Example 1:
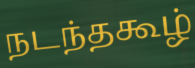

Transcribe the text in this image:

நடந்தகூழ்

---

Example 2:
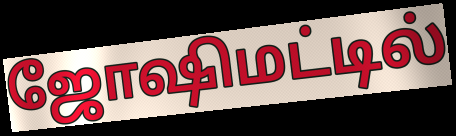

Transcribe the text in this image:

ஜோஷிமட்டில்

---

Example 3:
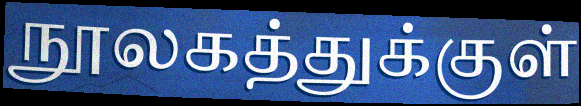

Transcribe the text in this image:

நூலகத்துக்குள்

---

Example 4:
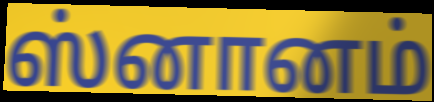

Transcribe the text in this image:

ஸ்னானம்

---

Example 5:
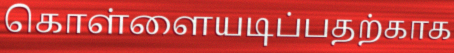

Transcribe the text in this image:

கொள்ளையடிப்பதற்காக